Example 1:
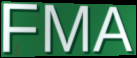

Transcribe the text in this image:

FMA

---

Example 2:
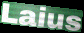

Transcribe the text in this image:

Laius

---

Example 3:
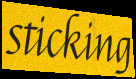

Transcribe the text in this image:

sticking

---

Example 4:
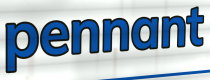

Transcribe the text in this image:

pennant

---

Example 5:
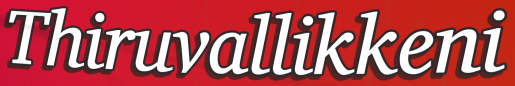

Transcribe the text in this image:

Thiruvallikkeni